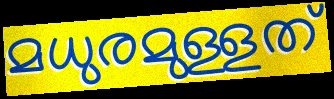
മധുരമുള്ളത്